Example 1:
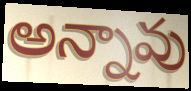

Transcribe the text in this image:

అన్నావు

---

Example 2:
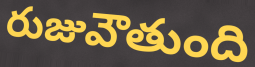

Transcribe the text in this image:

రుజువౌతుంది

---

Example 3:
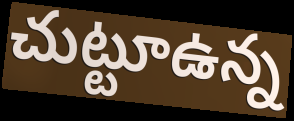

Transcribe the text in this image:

చుట్టూఉన్న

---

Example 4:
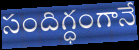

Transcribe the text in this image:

సందిగ్ధంగానే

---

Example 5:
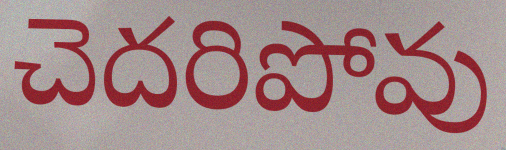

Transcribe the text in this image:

చెదరిపోవు